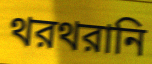
থরথরানি